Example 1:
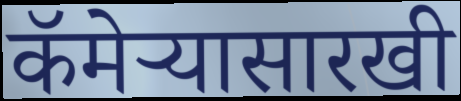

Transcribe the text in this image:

कॅमेऱ्यासारखी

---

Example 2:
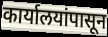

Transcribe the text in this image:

कार्यालयांपासून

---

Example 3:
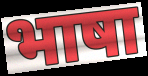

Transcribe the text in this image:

भाषा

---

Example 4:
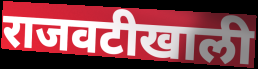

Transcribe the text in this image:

राजवटीखाली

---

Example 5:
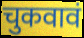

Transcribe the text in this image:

चुकवावं